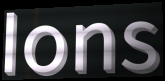
Ions